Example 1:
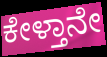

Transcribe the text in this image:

ಕೇಳ್ತಾನೇ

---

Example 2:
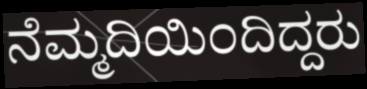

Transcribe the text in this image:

ನೆಮ್ಮದಿಯಿಂದಿದ್ದರು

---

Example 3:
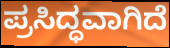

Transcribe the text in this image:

ಪ್ರಸಿದ್ಧವಾಗಿದೆ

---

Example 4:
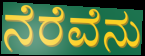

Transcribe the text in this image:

ನೆರೆವೆನು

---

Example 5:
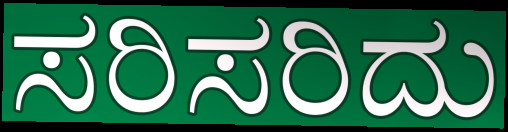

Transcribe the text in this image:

ಸರಿಸರಿದು